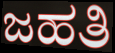
ಜಹತಿ